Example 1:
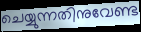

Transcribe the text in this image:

ചെയ്യുന്നതിനുവേണ്ട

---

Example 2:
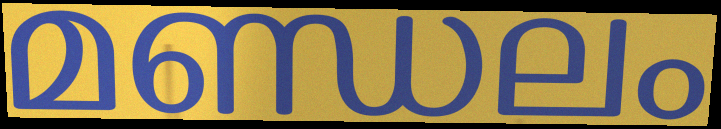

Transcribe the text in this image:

മണ്ഡലം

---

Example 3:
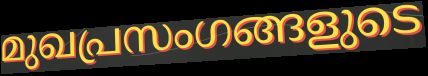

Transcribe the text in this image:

മുഖപ്രസംഗങ്ങളുടെ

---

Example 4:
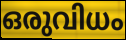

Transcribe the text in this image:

ഒരുവിധം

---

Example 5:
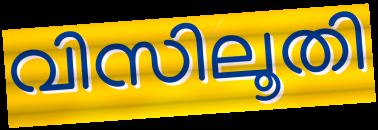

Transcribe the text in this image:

വിസിലൂതി